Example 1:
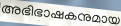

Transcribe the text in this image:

അഭിഭാഷകനുമായ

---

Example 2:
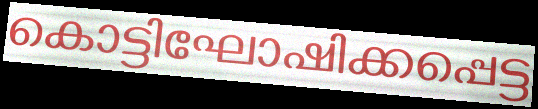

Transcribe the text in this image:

കൊട്ടിഘോഷിക്കപ്പെട്ട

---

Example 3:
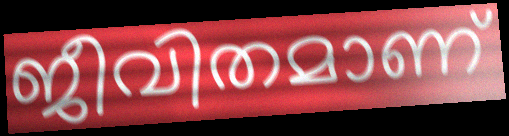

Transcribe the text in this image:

ജീവിതമാണ്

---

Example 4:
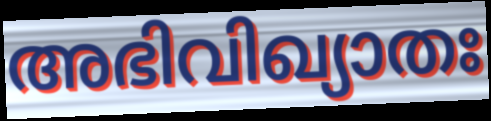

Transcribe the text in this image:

അഭിവിഖ്യാതഃ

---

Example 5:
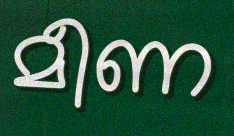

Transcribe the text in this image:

മീണ